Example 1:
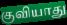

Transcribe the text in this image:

குவியாது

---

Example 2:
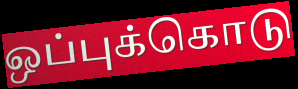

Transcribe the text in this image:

ஒப்புக்கொடு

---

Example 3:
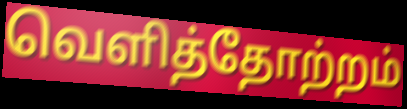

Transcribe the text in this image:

வெளித்தோற்றம்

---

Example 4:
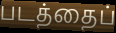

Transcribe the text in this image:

படத்தைப்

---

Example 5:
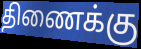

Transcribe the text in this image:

திணைக்கு